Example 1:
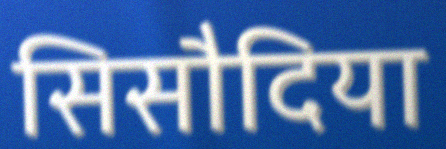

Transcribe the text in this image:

सिसौदिया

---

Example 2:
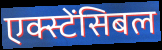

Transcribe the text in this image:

एक्स्टेंसिबल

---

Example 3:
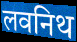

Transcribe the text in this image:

लवनिथ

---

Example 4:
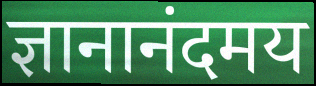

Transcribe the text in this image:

ज्ञानानंदमय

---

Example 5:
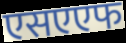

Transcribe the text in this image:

एसएएफ